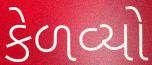
કેળવ્યો